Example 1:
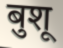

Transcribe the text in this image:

बुशू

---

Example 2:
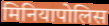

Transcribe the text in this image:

मिनियापोलिस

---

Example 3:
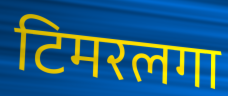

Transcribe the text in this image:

टिमरलगा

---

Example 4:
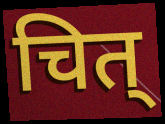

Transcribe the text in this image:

चित्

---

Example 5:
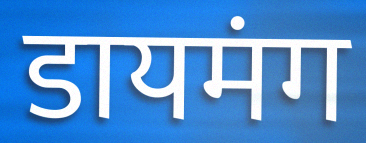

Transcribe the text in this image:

डायमंग